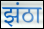
झंठा